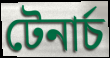
টেনাৰ্চ